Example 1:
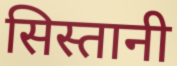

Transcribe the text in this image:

सिस्तानी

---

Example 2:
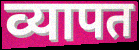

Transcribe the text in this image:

व्यापत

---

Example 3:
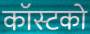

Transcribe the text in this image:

कॉस्टको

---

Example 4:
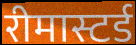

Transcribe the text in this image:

रीमास्टर्ड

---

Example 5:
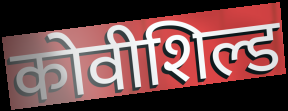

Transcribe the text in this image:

कोवीशिल्ड